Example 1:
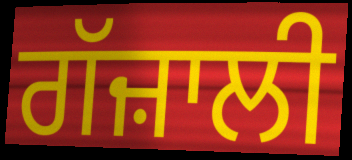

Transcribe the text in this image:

ਗੱਜ਼ਾਲੀ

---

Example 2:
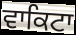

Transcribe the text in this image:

ਵਾਕਿਟਾ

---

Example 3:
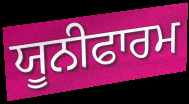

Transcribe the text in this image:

ਯੂਨੀਫਾਰਮ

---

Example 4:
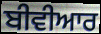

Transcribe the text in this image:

ਬੀਵੀਆਰ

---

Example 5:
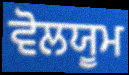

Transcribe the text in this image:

ਵੋਲਯੂਮ